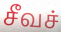
சீவச்